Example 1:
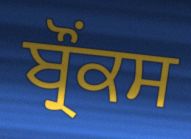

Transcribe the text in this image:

ਬ੍ਰੌਂਕਸ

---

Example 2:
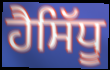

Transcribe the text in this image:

ਹੈਸਿੱਧੂ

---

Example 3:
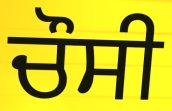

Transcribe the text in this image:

ਚੌਸੀ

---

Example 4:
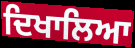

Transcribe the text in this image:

ਦਿਖਾਲਿਆ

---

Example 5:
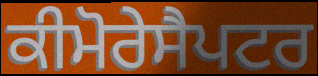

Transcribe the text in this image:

ਕੀਮੋਰੇਸੈਪਟਰ